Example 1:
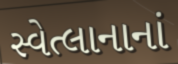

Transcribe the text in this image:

સ્વેત્લાનાનાં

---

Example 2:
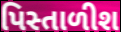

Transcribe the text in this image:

પિસ્તાળીશ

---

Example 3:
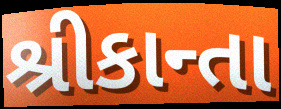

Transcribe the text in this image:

શ્રીકાન્તા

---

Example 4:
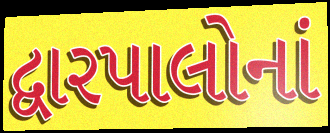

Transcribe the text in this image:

દ્વારપાલોનાં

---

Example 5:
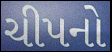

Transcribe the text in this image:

ચીપનો